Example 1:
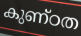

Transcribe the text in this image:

കുണ്ഠത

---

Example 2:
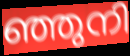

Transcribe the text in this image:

ഞ്ഞുനി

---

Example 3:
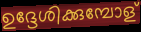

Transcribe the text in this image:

ഉദ്ദേശിക്കുമ്പോള്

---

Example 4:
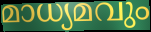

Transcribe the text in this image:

മാധ്യമവും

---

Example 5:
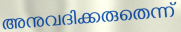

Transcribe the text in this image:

അനുവദിക്കരുതെന്ന്